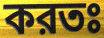
করতঃ